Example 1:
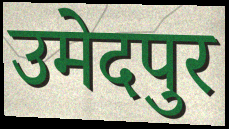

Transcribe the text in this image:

उमेदपुर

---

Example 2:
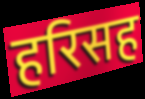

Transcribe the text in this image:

हरिसह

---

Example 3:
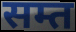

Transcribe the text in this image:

सम्त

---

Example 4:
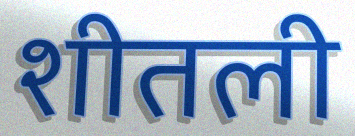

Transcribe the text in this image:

शीतली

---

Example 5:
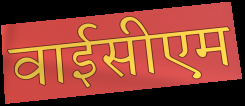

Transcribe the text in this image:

वाईसीएम